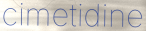
cimetidine